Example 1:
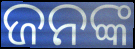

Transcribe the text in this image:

ଜନଙ୍କ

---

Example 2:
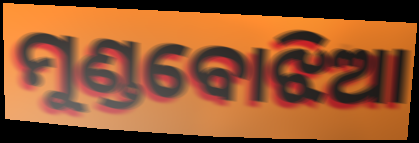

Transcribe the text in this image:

ମୁଣ୍ଡବୋଝିଆ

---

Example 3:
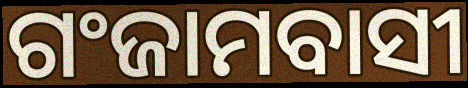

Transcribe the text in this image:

ଗଂଜାମବାସୀ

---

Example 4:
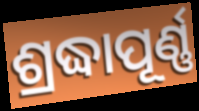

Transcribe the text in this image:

ଶ୍ରଦ୍ଧାପୂର୍ଣ୍ଣ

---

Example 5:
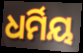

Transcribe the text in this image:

ଧର୍ମିୟ